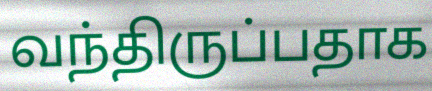
வந்திருப்பதாக